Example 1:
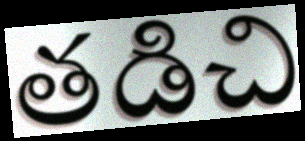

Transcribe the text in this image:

తడిచి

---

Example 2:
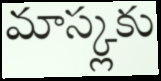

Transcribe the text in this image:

మాస్క్లకు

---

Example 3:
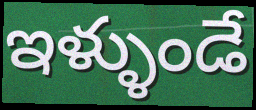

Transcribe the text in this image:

ఇళ్ళుండే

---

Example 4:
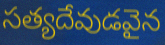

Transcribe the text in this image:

సత్యదేవుడవైన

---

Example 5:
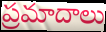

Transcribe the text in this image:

ప్రమాదాలు